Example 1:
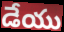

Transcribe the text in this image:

డేయు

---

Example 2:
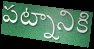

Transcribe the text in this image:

పట్నానికి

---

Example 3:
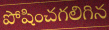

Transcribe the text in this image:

పోషించగలిగిన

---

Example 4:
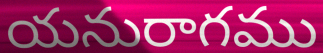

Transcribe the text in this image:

యనురాగము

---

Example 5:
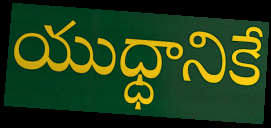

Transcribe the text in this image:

యుధ్ధానికే